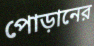
পোড়ানের